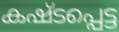
കഷ്ടപ്പെട്ട